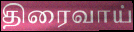
திரைவாய்